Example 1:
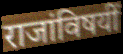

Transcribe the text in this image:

राजांविषयीं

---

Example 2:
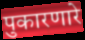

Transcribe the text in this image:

पुकारणारे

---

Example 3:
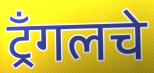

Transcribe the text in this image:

ट्रँगलचे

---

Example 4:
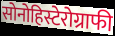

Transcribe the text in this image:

सोनोहिस्टेरोग्राफी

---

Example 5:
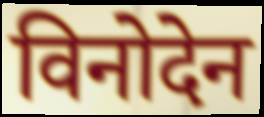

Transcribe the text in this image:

विनोदेन